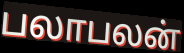
பலாபலன்